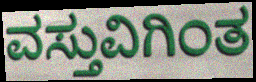
ವಸ್ತುವಿಗಿಂತ